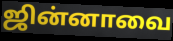
ஜின்னாவை